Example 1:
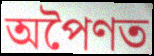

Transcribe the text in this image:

অপৈণত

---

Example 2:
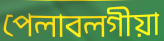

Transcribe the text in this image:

পেলাবলগীয়া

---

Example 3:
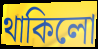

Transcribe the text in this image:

থাকিলো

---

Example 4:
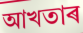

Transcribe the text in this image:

আখতাৰ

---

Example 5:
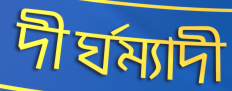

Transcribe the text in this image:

দীৰ্ঘম্যাদী